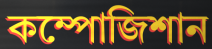
কম্পোজিশান